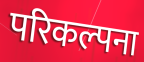
परिकल्पना